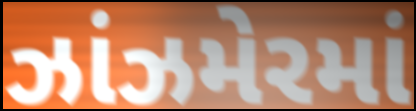
ઝાંઝમેરમાં